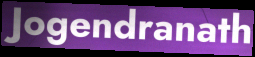
Jogendranath